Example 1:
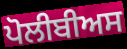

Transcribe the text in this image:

ਪੋਲੀਬੀਅਸ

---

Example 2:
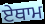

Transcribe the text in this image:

ਏਥਾਮ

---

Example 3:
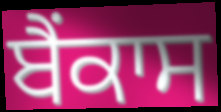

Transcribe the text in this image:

ਬੈਂਕਾਸ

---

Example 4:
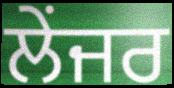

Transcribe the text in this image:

ਲੇਂਜਰ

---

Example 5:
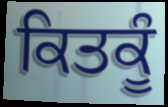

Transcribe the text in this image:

ਕਿਤਕੂੰ